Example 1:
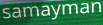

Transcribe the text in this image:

samayman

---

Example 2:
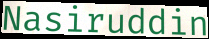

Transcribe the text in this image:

Nasiruddin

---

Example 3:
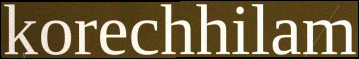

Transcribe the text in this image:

korechhilam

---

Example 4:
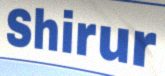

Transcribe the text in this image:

Shirur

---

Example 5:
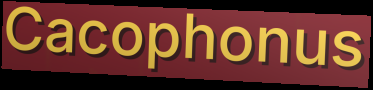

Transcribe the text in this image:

Cacophonus